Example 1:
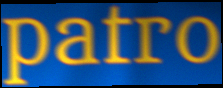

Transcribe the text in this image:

patro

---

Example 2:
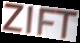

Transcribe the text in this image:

ZIFT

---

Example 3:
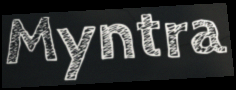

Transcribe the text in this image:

Myntra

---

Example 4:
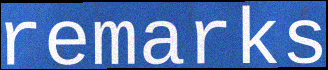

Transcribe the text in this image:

remarks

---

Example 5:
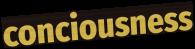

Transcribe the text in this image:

conciousness